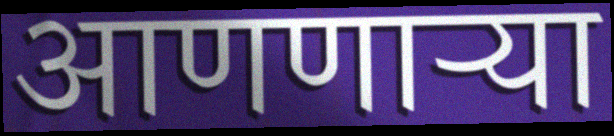
आणणाऱ्या